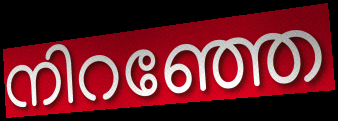
നിറഞ്ഞേ